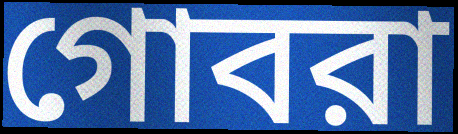
গোবরা